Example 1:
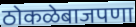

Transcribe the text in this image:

ठोकळेबाजपणा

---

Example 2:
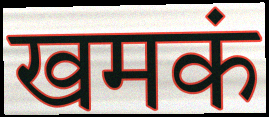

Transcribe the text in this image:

खमकं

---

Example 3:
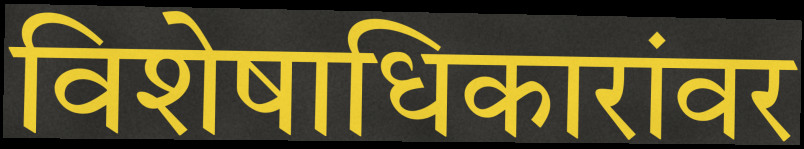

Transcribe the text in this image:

विशेषाधिकारांवर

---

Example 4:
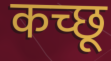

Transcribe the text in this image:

कच्छू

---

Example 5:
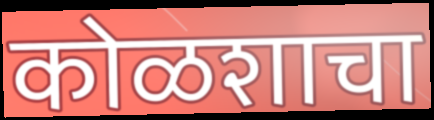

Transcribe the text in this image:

कोळशाचा